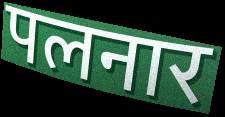
पलनार